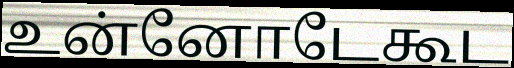
உன்னோடேகூட